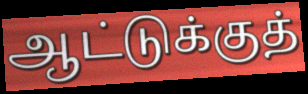
ஆட்டுக்குத்